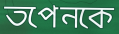
তপেনকে